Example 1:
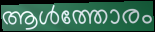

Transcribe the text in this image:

ആൾത്തോരം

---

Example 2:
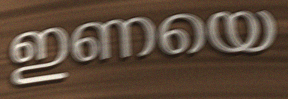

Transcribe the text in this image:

ഇണയെ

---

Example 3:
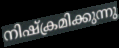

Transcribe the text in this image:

നിഷ്ക്രമിക്കുന്നു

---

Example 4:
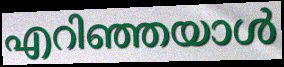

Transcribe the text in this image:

എറിഞ്ഞയാൾ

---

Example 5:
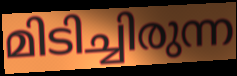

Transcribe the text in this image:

മിടിച്ചിരുന്ന